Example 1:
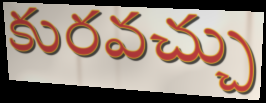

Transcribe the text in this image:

కురవచ్చు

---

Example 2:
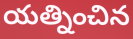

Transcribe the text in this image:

యత్నించిన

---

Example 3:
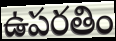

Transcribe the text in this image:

ఉపరతిం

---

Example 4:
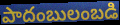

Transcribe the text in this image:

పాదంబులంబడి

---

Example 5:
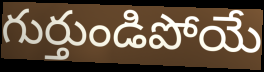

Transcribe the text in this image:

గుర్తుండిపోయే